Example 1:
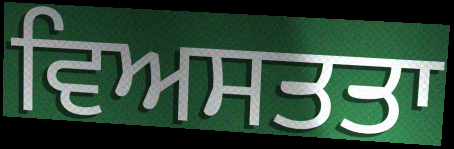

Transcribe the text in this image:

ਵਿਅਸਤਤਾ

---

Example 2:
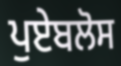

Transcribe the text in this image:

ਪੁਏਬਲੋਸ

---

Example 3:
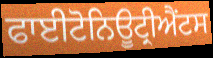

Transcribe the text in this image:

ਫਾਈਟੋਨਿਊਟ੍ਰੀਐਂਟਸ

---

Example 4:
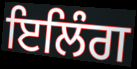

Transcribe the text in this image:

ਇਲਿੰਗ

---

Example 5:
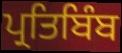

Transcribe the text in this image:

ਪ੍ਰਤਿਬਿੰਬ